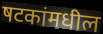
षटकांमधील